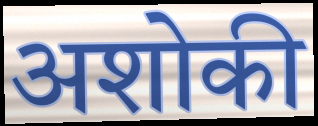
अशोकी